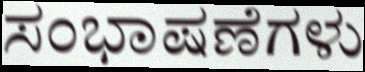
ಸಂಭಾಷಣೆಗಳು